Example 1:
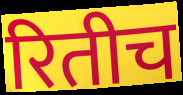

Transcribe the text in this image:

रितीच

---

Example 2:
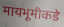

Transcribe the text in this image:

मायभूमीकडे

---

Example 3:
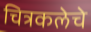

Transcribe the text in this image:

चित्रकलेचे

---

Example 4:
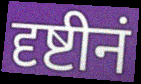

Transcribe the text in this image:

दृष्टीनं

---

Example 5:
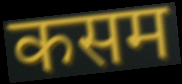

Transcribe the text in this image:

कसम